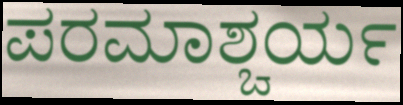
ಪರಮಾಶ್ಚರ್ಯ